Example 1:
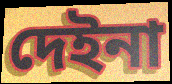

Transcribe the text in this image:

দেইনা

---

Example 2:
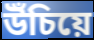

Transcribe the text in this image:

উঁচিয়ে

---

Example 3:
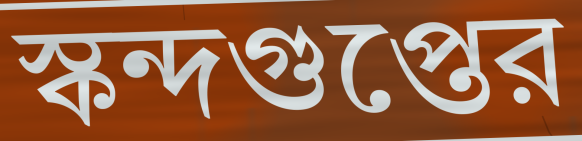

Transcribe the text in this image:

স্কন্দগুপ্তের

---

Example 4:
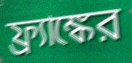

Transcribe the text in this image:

ফ্র্যাঙ্কের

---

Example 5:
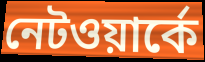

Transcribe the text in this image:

নেটওয়ার্কে